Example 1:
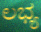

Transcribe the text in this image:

ಲಭ್ಯ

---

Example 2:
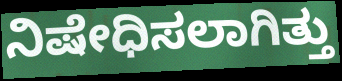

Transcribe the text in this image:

ನಿಷೇಧಿಸಲಾಗಿತ್ತು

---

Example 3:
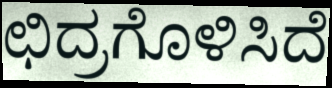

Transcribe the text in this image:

ಛಿದ್ರಗೊಳಿಸಿದೆ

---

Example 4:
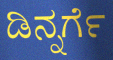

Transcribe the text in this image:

ಡಿನ್ನರ್ಗೆ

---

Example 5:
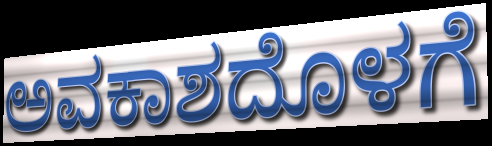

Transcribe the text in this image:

ಅವಕಾಶದೊಳಗೆ